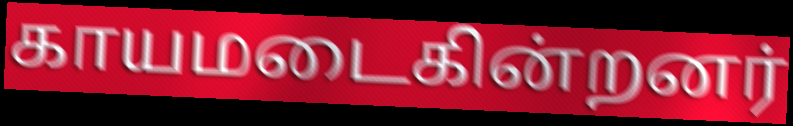
காயமடைகின்றனர்